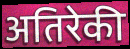
अतिरेकी